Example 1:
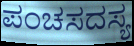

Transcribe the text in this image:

ಪಂಚಸದಸ್ಯ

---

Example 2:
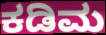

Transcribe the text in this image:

ಕಡಿಮ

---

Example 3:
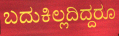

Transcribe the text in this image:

ಬದುಕಿಲ್ಲದಿದ್ದರೂ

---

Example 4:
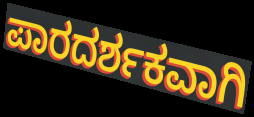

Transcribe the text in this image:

ಪಾರದರ್ಶಕವಾಗಿ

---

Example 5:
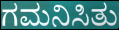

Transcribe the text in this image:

ಗಮನಿಸಿತು